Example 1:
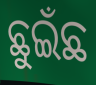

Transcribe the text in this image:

ଛୁଇଁଛ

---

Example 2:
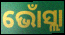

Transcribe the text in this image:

ଭୋଁସ୍ଲା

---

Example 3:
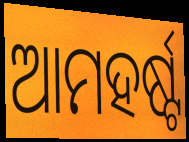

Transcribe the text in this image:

ଆମହର୍ଷ୍ଟ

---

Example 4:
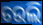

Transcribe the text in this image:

ତଉଲି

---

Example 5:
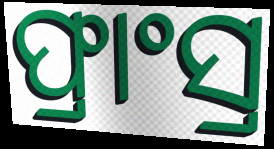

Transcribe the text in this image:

ଫ୍ରାଂସ୍ର